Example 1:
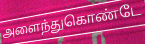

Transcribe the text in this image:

அளைந்துகொண்டே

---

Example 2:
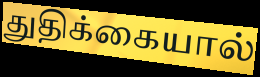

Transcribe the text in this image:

துதிக்கையால்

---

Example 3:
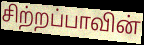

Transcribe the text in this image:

சிற்றப்பாவின்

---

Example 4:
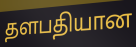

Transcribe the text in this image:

தளபதியான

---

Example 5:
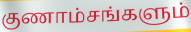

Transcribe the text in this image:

குணாம்சங்களும்